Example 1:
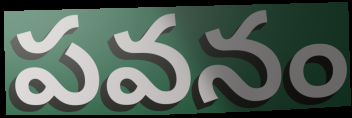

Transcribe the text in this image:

పవనం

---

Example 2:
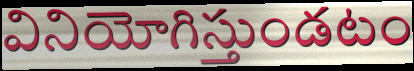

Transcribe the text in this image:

వినియోగిస్తుండటం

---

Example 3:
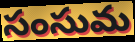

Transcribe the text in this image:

సంసుమ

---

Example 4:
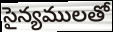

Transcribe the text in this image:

సైన్యములతో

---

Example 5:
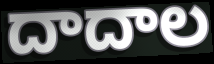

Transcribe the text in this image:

దాదాల